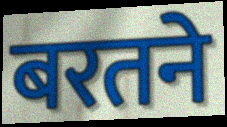
बरतने